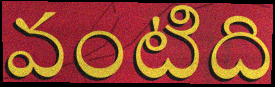
వంటిది